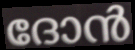
ദോൻ